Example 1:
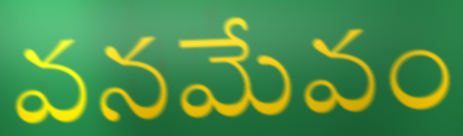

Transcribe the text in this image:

వనమేవం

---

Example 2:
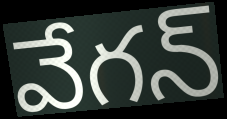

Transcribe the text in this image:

వేగన్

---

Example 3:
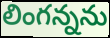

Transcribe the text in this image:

లింగన్నను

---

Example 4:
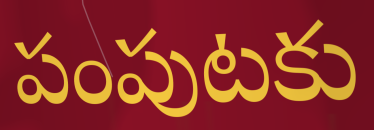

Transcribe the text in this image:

పంపుటకు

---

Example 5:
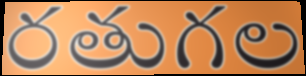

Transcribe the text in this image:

రతుగల